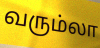
வரும்லா